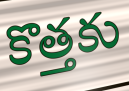
కొత్తకు